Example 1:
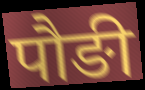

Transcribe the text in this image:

पौङी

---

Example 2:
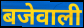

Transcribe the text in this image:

बजेवाली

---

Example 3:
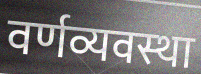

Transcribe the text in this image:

वर्णव्यवस्था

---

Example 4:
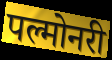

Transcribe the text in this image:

पल्मोनरी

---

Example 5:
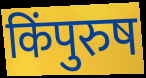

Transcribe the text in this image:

किंपुरुष